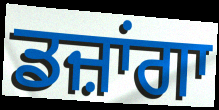
ਡਜ਼ਾਂਗਾ